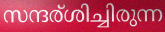
സന്ദര്ശിച്ചിരുന്ന